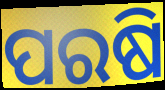
ପରଷି